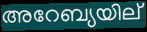
അറേബ്യയില്